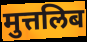
मुत्तलिब